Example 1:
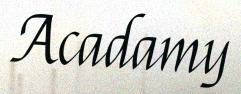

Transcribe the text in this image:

Acadamy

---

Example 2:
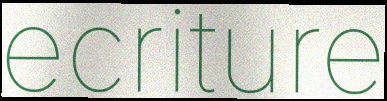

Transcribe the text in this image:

ecriture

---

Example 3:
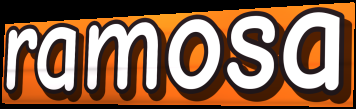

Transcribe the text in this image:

ramosa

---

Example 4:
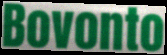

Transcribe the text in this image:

Bovonto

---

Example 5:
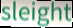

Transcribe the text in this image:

sleight